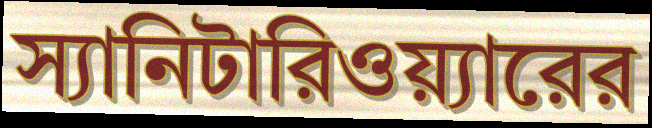
স্যানিটারিওয়্যারের